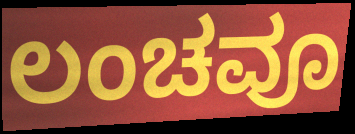
ಲಂಚವೂ